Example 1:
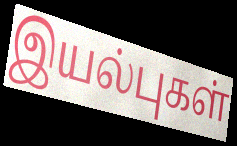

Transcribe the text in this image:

இயல்புகள்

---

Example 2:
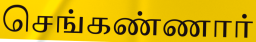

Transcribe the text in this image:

செங்கண்ணார்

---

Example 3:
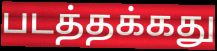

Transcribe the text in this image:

படத்தக்கது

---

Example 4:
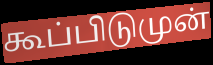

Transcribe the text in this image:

கூப்பிடுமுன்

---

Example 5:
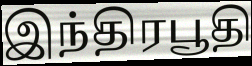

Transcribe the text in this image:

இந்திரபூதி